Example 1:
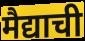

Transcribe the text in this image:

मैद्याची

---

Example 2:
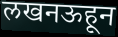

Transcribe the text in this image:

लखनऊहून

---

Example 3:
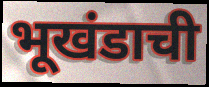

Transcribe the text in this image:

भूखंडाची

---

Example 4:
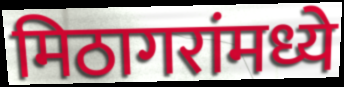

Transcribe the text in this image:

मिठागरांमध्ये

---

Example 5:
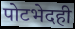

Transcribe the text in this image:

पोटभेदही